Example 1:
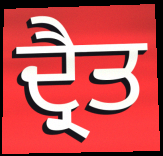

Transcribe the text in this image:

ਦ੍ਰੈਤ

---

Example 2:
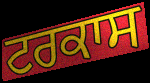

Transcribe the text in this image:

ਟਰਕਾਸ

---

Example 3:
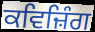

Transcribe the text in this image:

ਕਵਿਜ਼ਿੰਗ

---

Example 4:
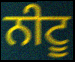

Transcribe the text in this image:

ਨੀਟੂ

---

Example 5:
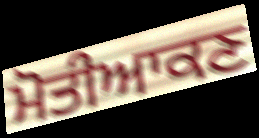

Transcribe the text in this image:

ਮੋਤੀਆਕਣ